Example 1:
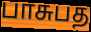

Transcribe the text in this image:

பாசுபத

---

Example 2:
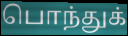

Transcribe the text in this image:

பொந்துக்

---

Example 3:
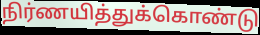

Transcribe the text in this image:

நிர்ணயித்துக்கொண்டு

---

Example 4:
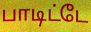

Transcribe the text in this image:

பாடிட்டே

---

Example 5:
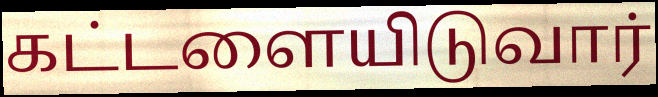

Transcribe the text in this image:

கட்டளையிடுவார்